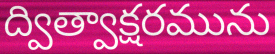
ద్విత్వాక్షరమును